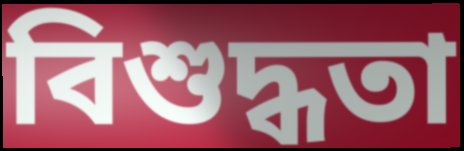
বিশুদ্ধতা